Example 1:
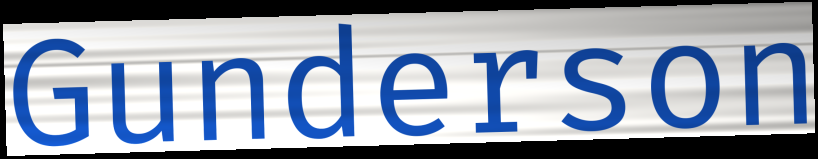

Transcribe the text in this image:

Gunderson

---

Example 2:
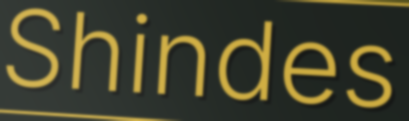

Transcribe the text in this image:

Shindes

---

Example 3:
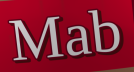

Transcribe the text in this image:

Mab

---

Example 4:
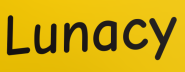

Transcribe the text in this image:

Lunacy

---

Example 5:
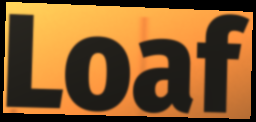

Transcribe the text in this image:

Loaf